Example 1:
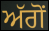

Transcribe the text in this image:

ਅੱਗੋਂ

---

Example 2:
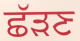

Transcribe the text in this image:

ਛੱੜਣ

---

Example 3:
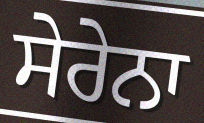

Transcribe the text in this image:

ਸੇਰੇਨਾ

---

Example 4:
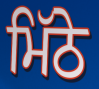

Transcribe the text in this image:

ਮਿੱਠੇ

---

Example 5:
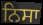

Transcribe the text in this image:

ਨਿਸਾ